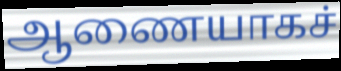
ஆணையாகச்